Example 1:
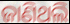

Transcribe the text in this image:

ଜାଣିଥଲି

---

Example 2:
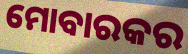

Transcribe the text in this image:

ମୋବାରକର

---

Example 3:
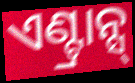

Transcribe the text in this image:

ଏଣ୍ଟ୍ରାନ୍ସ୍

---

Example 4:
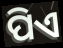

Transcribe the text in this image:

ପିଏ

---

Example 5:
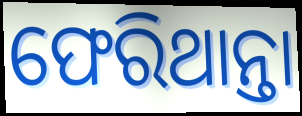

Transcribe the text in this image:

ଫେରିଥାନ୍ତା